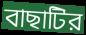
বাছাটির